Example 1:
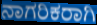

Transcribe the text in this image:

ನಾಗರಿಕರಾಗಿ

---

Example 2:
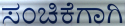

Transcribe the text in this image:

ಸಂಚಿಕೆಗಾಗಿ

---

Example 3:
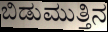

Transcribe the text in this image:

ಬಿಡುಮುತ್ತಿನ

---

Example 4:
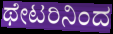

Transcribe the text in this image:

ಥೇಟರಿನಿಂದ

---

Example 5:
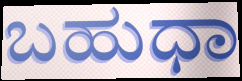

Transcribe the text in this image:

ಬಹುಧಾ